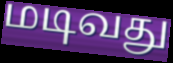
மடிவது